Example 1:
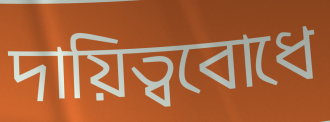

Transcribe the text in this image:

দায়িত্ববোধে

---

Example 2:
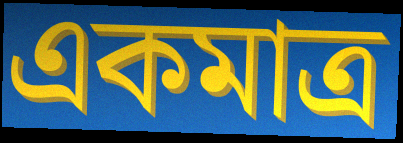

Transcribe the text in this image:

একমাত্ৰ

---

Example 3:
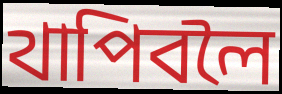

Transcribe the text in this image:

থাপিবলৈ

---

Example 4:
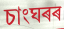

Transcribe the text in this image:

চাংঘৰৰ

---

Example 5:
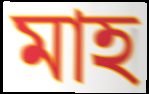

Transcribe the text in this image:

মাহ